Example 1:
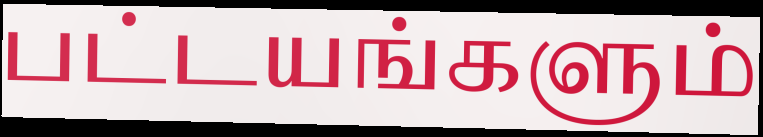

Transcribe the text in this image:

பட்டயங்களும்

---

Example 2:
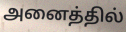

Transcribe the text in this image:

அனைத்தில்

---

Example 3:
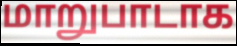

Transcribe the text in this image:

மாறுபாடாக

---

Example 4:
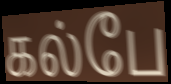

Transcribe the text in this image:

கல்பே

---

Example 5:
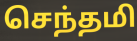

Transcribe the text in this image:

செந்தமி